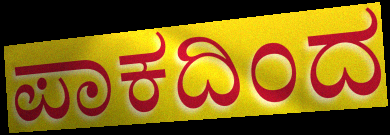
ಪಾಕದಿಂದ